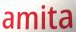
amita